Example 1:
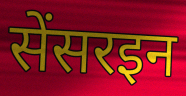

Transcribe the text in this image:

सेंसरइन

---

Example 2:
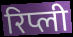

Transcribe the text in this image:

रिप्ली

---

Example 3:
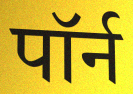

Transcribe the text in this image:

पॉर्न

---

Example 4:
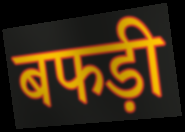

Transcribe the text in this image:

बफड़ी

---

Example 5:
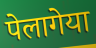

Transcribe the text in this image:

पेलागेया